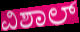
ವಿಶಾಲ್